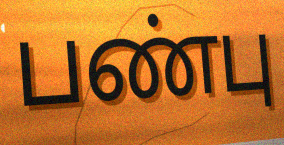
பண்பு